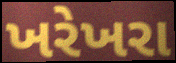
ખરેખરા